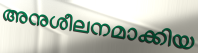
അനുശീലനമാക്കിയ